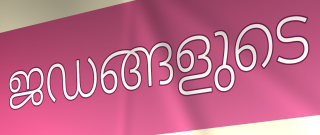
ജഡങ്ങളുടെ